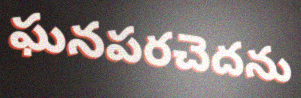
ఘనపరచెదను